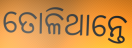
ତୋଳିଥାନ୍ତେ